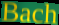
Bach